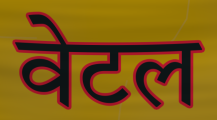
वेटल